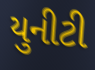
યુનીટી